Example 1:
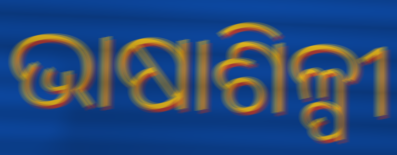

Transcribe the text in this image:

ଭାଷାଶିଳ୍ପୀ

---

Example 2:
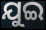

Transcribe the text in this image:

ଯୁଇ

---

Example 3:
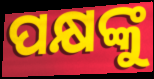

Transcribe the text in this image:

ପକ୍ଷଙ୍କୁ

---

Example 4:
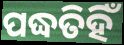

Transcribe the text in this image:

ପଦ୍ଧତିହିଁ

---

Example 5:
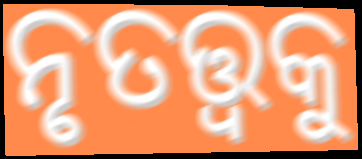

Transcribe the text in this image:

ନୃତତ୍ତ୍ଵକୁ